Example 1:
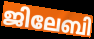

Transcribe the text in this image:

ജിലേബി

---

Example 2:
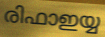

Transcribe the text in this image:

രിഫാഇയ്യ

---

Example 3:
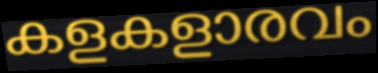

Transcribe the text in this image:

കളകളാരവം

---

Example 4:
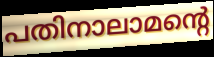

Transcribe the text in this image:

പതിനാലാമന്റെ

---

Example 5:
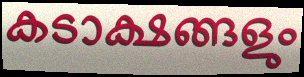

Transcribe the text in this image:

കടാക്ഷങ്ങളും